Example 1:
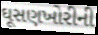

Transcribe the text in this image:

ઘૂસણખોરીની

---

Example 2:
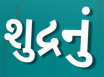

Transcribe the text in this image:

શુદ્રનું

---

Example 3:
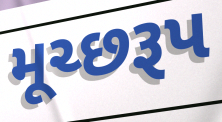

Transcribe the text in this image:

મૂચ્છરૂપ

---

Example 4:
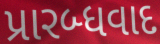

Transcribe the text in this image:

પ્રારબ્ધવાદ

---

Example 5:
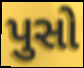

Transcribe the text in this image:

પુસો